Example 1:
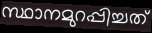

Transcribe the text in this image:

സ്ഥാനമുറപ്പിച്ചത്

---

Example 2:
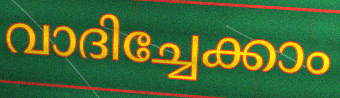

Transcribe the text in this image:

വാദിച്ചേക്കാം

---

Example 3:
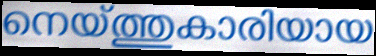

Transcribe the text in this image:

നെയ്ത്തുകാരിയായ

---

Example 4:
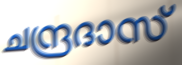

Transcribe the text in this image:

ചന്ദ്രദാസ്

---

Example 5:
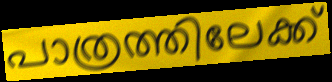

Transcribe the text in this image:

പാത്രത്തിലേക്ക്